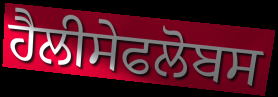
ਹੈਲੀਸੇਫਲੋਬਸ